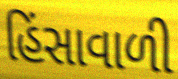
હિંસાવાળી